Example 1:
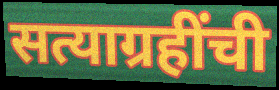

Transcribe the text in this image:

सत्याग्रहींची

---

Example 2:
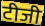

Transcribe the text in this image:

टीजी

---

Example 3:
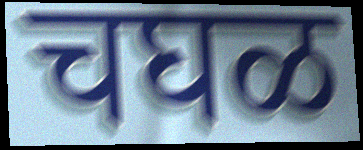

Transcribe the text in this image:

चघळ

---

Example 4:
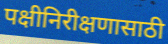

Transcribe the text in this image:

पक्षीनिरीक्षणासाठी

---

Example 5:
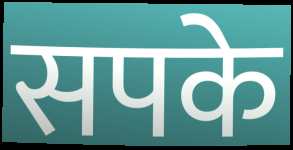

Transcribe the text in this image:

सपके